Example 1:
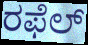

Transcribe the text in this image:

ರಫೆಲ್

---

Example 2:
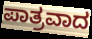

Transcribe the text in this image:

ಪಾತ್ರವಾದ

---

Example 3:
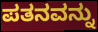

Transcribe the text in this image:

ಪತನವನ್ನು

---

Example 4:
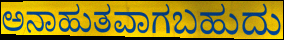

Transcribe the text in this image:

ಅನಾಹುತವಾಗಬಹುದು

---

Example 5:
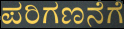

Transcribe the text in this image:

ಪರಿಗಣನೆಗೆ